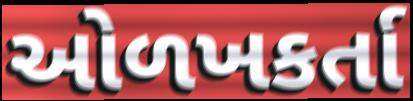
ઓળખકર્તા